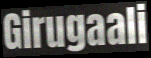
Girugaali